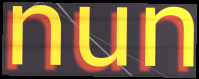
nun